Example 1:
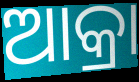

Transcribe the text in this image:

ଆକ୍ରା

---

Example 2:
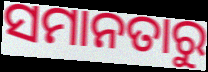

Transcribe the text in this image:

ସମାନତାରୁ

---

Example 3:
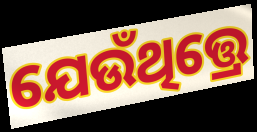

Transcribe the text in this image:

ଯେଉଁଥିତ୍ତ୍ରେ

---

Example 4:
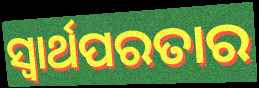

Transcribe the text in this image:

ସ୍ଵାର୍ଥପରତାର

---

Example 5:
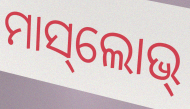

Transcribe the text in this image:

ମାସ୍‌ଲୋଭ୍